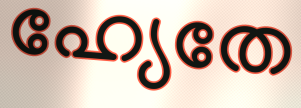
ഹ്യേതേ